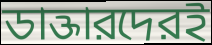
ডাক্তারদেরই